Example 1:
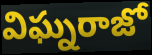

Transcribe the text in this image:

విఘ్నరాజో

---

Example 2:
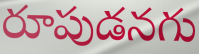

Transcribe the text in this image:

రూపుడనగు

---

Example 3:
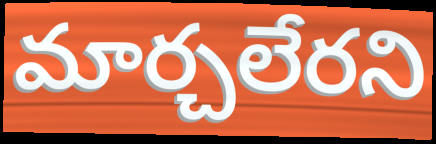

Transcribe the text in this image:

మార్చలేరని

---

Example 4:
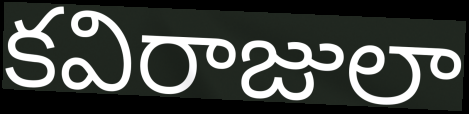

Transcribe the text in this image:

కవిరాజులా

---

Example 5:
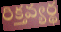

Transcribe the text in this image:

రిక్తవ్యర్థ